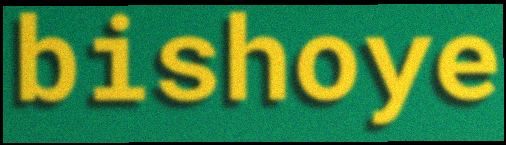
bishoye